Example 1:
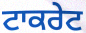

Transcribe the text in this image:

ਟਾਕਰੇਟ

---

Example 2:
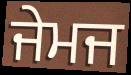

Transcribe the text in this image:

ਜੇਮਜ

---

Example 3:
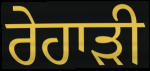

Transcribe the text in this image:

ਰੇਹਾੜੀ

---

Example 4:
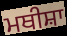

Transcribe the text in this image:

ਮਥੀਸ਼ਾ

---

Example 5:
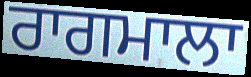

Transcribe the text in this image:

ਰਾਗਮਾਲਾ